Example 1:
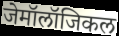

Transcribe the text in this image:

जेमॉलॉजिकल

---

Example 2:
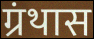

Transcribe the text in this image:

ग्रंथास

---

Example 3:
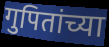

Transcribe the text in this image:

गुपितांच्या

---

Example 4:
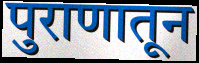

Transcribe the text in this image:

पुराणातून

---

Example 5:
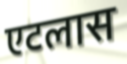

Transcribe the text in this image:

एटलास